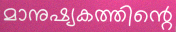
മാനുഷ്യകത്തിന്റെ